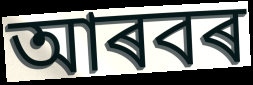
আৰবৰ